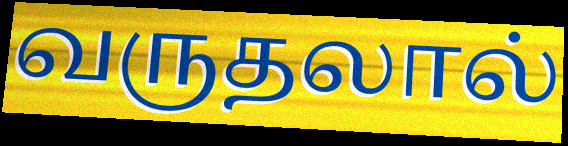
வருதலால்